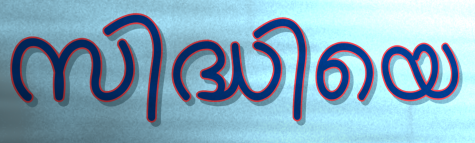
സിദ്ധിയെ